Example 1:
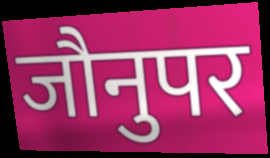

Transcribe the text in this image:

जौनुपर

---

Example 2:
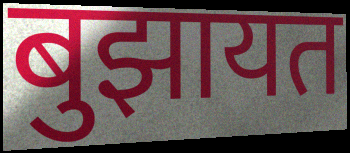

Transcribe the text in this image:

बुझायत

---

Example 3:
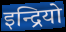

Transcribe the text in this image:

इन्द्रियो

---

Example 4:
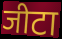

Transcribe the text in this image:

जीटा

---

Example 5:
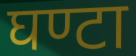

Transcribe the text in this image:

घण्टा